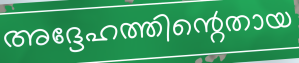
അദ്ദേഹത്തിന്റെതായ